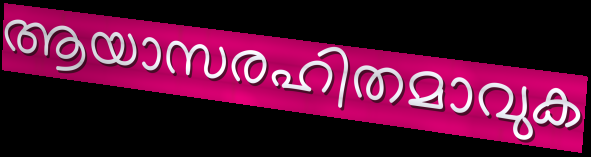
ആയാസരഹിതമാവുക